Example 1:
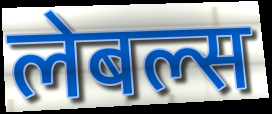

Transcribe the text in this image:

लेबल्स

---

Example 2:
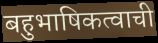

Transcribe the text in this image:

बहुभाषिकत्वाची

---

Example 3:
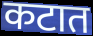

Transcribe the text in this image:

कटात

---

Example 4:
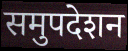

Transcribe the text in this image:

समुपदेशन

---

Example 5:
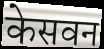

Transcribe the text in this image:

केसवन